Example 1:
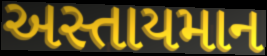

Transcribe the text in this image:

અસ્તાયમાન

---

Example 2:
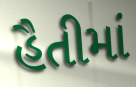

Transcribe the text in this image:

હૈતીમાં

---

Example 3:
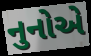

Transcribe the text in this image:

નુનોએ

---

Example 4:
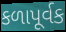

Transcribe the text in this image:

કળાપૂર્વક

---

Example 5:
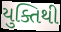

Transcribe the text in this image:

યુક્તિથી